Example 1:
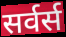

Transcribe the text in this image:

सर्वर्स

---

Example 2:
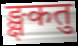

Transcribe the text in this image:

ङ्क्षकतु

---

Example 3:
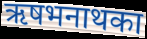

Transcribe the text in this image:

ऋषभनाथका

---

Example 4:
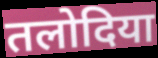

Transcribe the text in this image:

तलोदिया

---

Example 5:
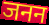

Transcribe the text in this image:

जनन